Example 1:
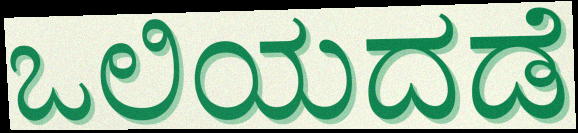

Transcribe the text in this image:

ಒಲಿಯದಡೆ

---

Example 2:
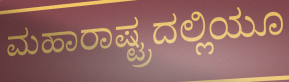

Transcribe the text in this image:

ಮಹಾರಾಷ್ಟ್ರದಲ್ಲಿಯೂ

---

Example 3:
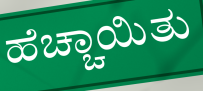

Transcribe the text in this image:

ಹೆಚ್ಚಾಯಿತು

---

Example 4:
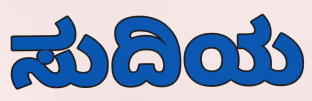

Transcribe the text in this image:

ಸುದಿಯ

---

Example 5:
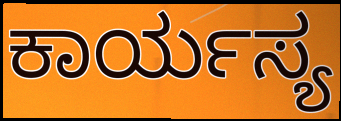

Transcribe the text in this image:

ಕಾರ್ಯಸ್ಯ